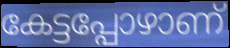
കേട്ടപ്പോഴാണ്